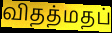
விதத்மதப்